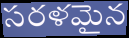
సరళమైన